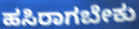
ಹಸಿರಾಗಬೇಕು